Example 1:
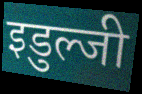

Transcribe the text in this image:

इडुल्जी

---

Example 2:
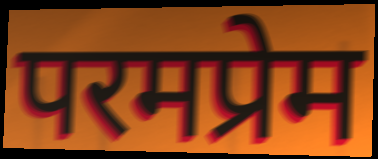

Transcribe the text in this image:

परमप्रेम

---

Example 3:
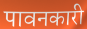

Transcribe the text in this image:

पावनकारी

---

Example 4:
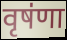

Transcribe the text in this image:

वृष॑णा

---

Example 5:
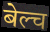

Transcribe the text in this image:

बेल्च